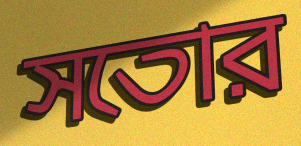
সতোর